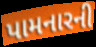
પામનારની